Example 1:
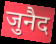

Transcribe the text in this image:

जुनैद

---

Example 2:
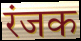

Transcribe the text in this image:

रंजक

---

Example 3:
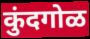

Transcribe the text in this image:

कुंदगोळ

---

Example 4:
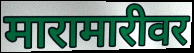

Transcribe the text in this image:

मारामारीवर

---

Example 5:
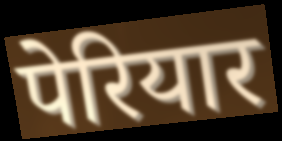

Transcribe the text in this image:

पेरियार